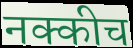
नक्‍कीच